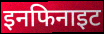
इनफिनाइट